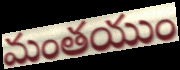
మంతయుం